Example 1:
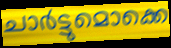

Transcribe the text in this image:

ചാർട്ടുമൊക്കെ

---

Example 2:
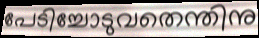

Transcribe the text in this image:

പേടിച്ചോടുവതെന്തിനു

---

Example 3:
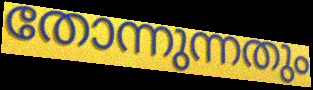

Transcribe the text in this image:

തോന്നുന്നതും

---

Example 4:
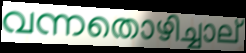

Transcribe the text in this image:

വന്നതൊഴിച്ചാല്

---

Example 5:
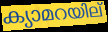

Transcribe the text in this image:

ക്യാമറയില്